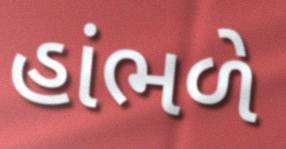
હાંભળે